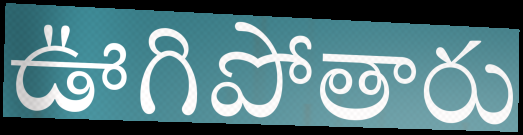
ఊగిపోతారు